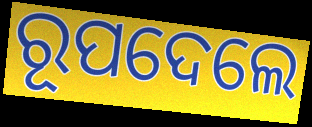
ରୂପଦେଲେ